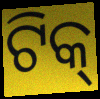
ଟିକ୍